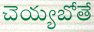
చెయ్యబోతే